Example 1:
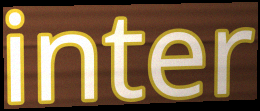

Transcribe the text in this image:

inter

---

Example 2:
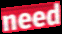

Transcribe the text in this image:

need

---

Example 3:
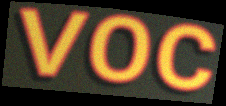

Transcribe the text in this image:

voc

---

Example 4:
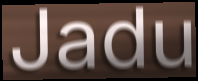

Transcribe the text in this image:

Jadu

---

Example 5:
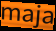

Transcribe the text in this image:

maja